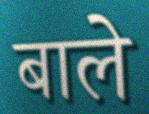
बाले